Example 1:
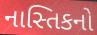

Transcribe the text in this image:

નાસ્તિકનો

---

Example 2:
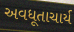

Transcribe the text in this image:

અવધૂતાચાર્ય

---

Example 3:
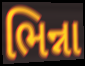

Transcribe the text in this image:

ભિન્ના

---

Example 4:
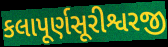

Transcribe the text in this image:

કલાપૂર્ણસૂરીશ્વરજી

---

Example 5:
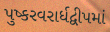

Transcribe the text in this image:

પુષ્કરવરાર્ધદ્વીપમાં